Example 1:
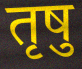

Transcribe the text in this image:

तृषु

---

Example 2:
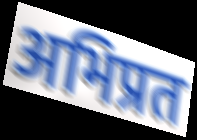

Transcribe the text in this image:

अभिप्रत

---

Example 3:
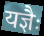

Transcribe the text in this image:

यज्ञैः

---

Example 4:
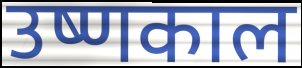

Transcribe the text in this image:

उष्णकाल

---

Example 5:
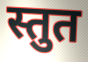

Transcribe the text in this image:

स्तुत